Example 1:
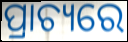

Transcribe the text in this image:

ପ୍ରାଚ୍ୟରେ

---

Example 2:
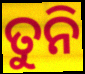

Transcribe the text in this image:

ତୁନି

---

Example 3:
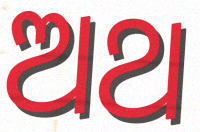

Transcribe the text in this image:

ଅଥ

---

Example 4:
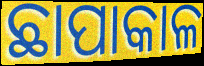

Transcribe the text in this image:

ଛାପାକାଳ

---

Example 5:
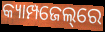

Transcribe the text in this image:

କ୍ୟାମ୍ପଜେଲ୍‌ରେ